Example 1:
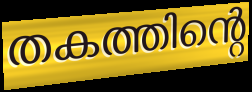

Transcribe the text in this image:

തകത്തിന്റെ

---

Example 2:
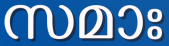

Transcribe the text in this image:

സമാഃ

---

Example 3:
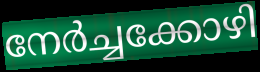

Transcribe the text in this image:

നേർച്ചക്കോഴി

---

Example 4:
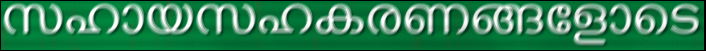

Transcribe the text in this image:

സഹായസഹകരണങ്ങളോടെ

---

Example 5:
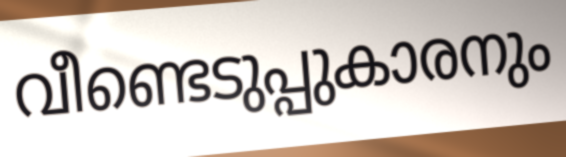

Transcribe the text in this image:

വീണ്ടെടുപ്പുകാരനും